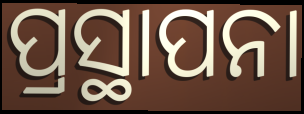
ପ୍ରସ୍ଥାପନା